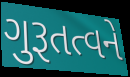
ગુરૂતત્વને